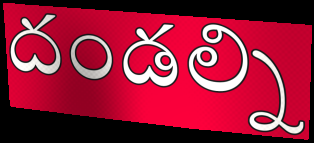
దండల్ని